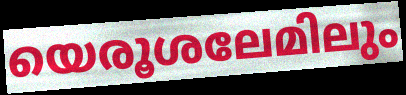
യെരൂശലേമിലും